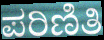
ಪರಿಣಿತಿ